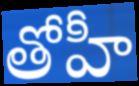
తోహీ